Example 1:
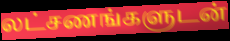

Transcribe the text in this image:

லட்சணங்களுடன்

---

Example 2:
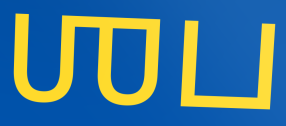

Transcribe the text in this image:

ஶப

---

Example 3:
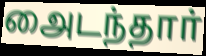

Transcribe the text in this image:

அைடந்தார்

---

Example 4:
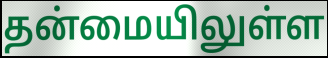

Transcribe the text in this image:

தன்மையிலுள்ள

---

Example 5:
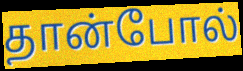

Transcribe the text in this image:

தான்போல்